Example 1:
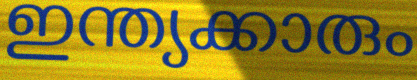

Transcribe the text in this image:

ഇന്ത്യക്കാരും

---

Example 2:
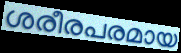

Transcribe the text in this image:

ശരീരപരമായ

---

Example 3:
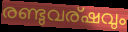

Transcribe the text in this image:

രണ്ടുവര്ഷവും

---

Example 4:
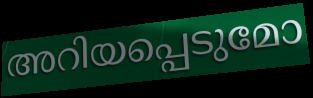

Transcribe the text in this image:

അറിയപ്പെടുമോ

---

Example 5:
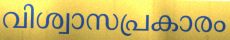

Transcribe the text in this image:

വിശ്വാസപ്രകാരം